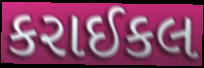
કરાઈકલ